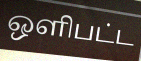
ஒளிபட்ட